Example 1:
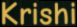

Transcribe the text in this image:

Krishi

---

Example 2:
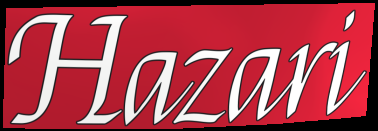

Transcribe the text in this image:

Hazari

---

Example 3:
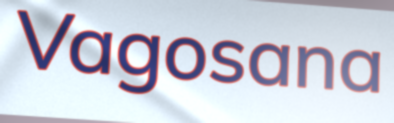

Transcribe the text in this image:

Vagosana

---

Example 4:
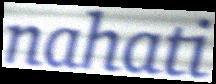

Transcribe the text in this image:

nahati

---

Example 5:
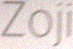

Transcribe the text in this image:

Zoji